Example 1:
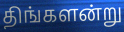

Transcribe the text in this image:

திங்களன்று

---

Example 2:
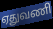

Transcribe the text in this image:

ஏதுவணி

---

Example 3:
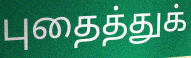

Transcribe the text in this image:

புதைத்துக்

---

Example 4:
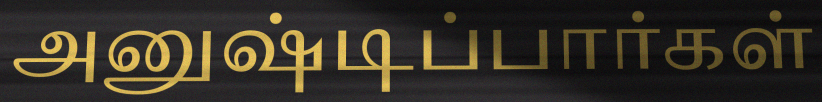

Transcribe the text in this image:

அனுஷ்டிப்பார்கள்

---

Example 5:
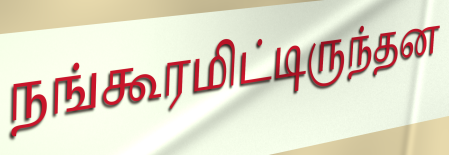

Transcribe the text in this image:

நங்கூரமிட்டிருந்தன